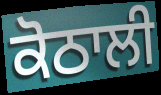
ਕੋਠਾਲੀ